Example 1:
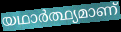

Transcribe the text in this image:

യഥാർത്ഥ്യമാണ്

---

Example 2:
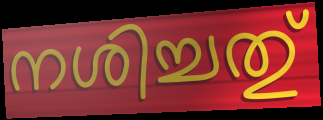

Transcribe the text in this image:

നശിച്ചതു്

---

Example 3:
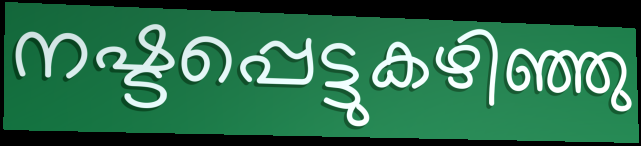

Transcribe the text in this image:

നഷ്ടപ്പെട്ടുകഴിഞ്ഞു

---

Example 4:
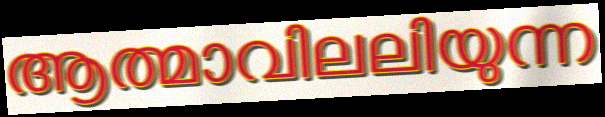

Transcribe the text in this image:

ആത്മാവിലലിയുന്ന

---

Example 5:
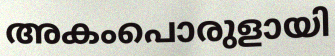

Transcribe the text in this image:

അകംപൊരുളായി